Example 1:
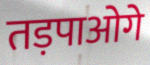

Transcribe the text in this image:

तड़पाओगे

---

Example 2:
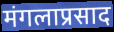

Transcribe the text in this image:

मंगलाप्रसाद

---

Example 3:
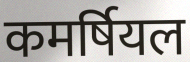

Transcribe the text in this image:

कमर्षियल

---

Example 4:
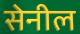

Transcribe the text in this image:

सेनील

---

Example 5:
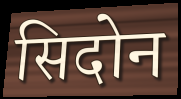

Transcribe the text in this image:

सिदोन